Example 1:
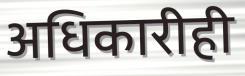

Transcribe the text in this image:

अधिकारीही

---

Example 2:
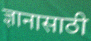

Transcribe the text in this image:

ज्ञानासाठी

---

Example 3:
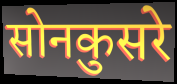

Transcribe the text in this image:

सोनकुसरे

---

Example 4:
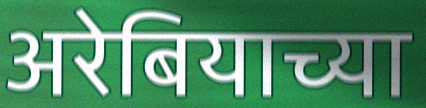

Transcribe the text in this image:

अरेबियाच्या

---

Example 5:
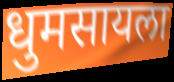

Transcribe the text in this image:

धुमसायला